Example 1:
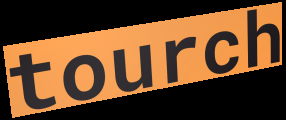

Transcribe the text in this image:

tourch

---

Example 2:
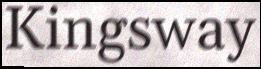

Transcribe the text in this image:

Kingsway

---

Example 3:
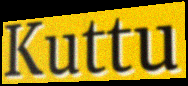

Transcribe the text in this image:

Kuttu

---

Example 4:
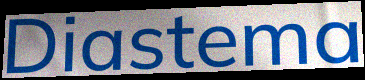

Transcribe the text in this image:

Diastema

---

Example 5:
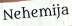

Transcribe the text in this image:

Nehemija